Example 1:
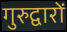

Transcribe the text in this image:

गुरुद्वारों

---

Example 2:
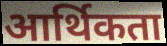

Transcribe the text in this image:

आर्थिकता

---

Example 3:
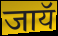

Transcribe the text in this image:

जायॅ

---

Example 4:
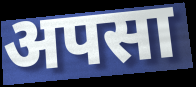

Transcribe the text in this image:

अपसा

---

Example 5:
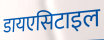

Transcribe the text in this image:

डायएसिटाइल